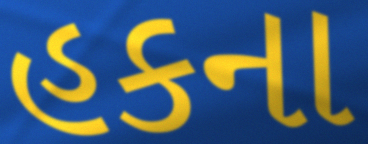
હકના